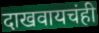
दाखवायचंही